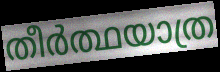
തീർത്ഥയാത്ര